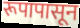
रूपापासून